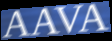
AAVA